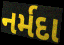
નર્મદા